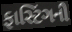
ફાસ્ટિંગની